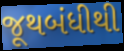
જૂથબંધીથી